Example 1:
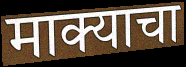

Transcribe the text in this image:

माक्याचा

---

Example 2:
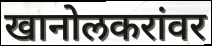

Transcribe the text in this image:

खानोलकरांवर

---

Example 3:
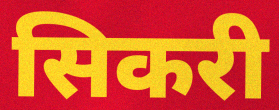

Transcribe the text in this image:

सिकरी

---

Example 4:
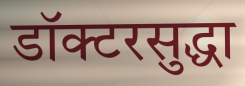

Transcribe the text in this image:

डॉक्टरसुद्धा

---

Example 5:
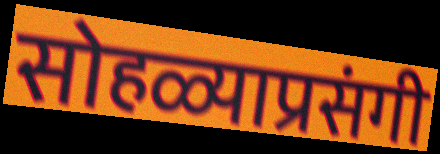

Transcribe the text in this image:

सोहळ्याप्रसंगी